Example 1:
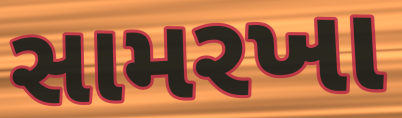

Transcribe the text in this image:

સામરખા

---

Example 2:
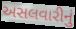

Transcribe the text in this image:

અસલવારીનું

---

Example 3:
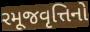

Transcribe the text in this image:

રમૂજવૃત્તિનો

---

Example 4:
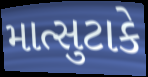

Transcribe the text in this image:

માત્સુટાકે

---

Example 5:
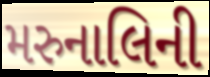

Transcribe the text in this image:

મરુનાલિની